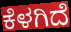
ಕೆಳಗಿದೆ